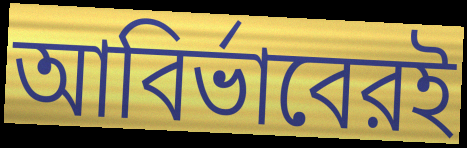
আবির্ভাবেরই